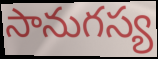
సానుగస్య